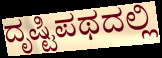
ದೃಷ್ಟಿಪಥದಲ್ಲಿ